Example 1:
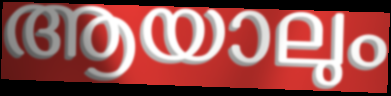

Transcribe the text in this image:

ആയാലും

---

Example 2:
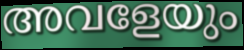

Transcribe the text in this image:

അവളേയും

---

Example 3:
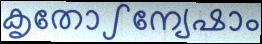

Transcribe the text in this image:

കൃതോഽന്യേഷാം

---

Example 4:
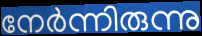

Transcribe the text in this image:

നേർന്നിരുന്നു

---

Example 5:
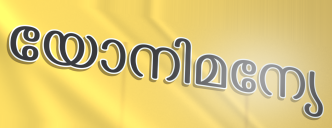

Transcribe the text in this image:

യോനിമന്യേ